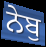
ਨੇਬੁ